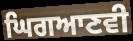
ਘਿਗਆਣਵੀ